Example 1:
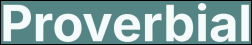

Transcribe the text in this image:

Proverbial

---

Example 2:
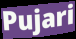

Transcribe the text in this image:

Pujari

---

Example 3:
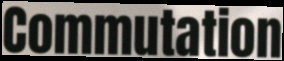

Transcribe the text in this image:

Commutation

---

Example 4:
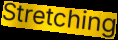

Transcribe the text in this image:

Stretching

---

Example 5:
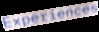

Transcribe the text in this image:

Experiences